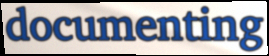
documenting